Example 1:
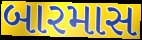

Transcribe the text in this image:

બારમાસ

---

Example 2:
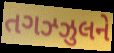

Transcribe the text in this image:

તગઝ્ઝુલને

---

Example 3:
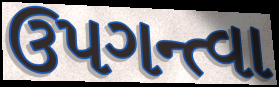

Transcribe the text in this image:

ઉપગન્ત્વા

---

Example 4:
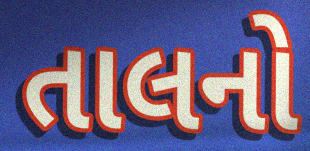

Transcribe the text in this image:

તાલનો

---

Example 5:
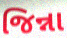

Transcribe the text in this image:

જિન્ના